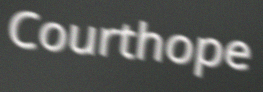
Courthope